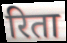
रिता